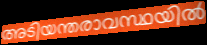
അടിയന്തരാവസ്ഥയിൽ